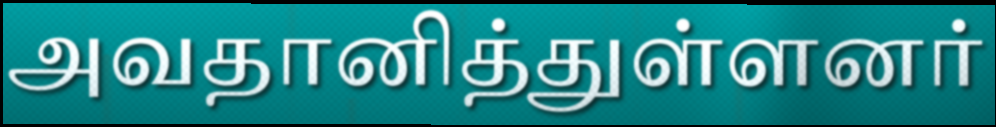
அவதானித்துள்ளனர்